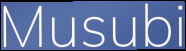
Musubi